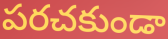
పరచకుండా